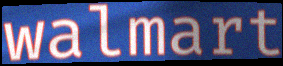
walmart